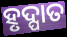
ହୃଦ୍ପାତ